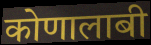
कोणालाबी